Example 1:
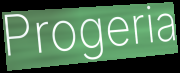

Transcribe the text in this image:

Progeria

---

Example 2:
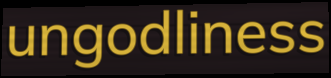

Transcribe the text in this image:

ungodliness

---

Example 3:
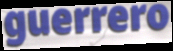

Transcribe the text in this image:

guerrero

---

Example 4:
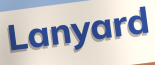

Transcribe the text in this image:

Lanyard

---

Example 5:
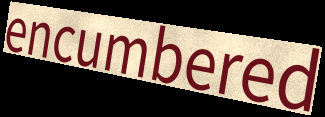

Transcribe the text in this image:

encumbered